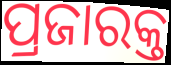
ପ୍ରଜାରକ୍ତ